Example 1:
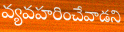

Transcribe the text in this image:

వ్యవహరించేవాడని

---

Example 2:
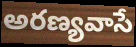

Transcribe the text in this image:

అరణ్యవాసే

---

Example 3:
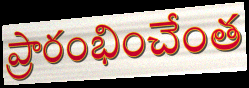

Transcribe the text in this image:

ప్రారంభించేంత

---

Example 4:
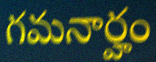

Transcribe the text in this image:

గమనార్హం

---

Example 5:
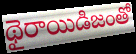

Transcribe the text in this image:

థైరాయిడిజంతో